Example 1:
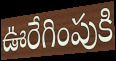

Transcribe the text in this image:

ఊరేగింపుకి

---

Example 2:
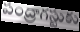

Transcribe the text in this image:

పంద్రాగస్టుకు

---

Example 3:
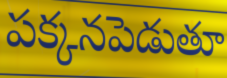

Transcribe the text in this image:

పక్కనపెడుతూ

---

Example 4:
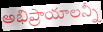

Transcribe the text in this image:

అభిప్రాయాలన్నీ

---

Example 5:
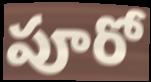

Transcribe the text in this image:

పూరో